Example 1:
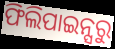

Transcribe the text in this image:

ଫିଲିପାଇନ୍ସରୁ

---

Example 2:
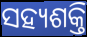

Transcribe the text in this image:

ସହ୍ୟଶକ୍ତି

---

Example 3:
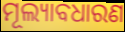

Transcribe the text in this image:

ମୂଲ୍ୟାବଧାରଣ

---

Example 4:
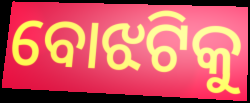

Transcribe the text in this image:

ବୋଝଟିକୁ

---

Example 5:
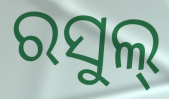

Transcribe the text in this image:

ରସୁଲ୍